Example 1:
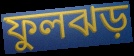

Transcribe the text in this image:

ফুলঝড়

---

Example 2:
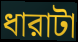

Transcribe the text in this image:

ধারাটা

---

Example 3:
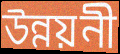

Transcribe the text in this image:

উন্নয়নী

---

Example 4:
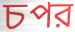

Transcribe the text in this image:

চপর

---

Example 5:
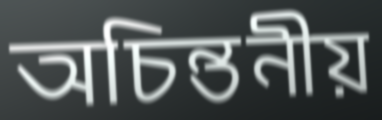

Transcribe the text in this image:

অচিন্তনীয়